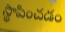
స్థాపించడం